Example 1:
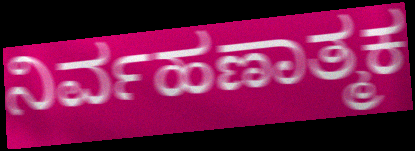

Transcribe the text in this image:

ನಿರ್ವಹಣಾತ್ಮಕ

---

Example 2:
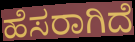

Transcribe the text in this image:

ಹೆಸರಾಗಿದೆ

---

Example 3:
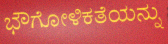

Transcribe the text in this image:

ಭೌಗೋಳಿಕತೆಯನ್ನು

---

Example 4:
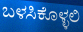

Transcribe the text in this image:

ಬಳಸಿಕೊಳ್ಳಲಿ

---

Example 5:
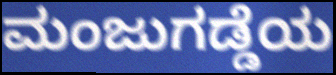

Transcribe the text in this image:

ಮಂಜುಗಡ್ಡೆಯ